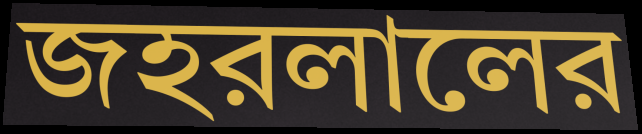
জহরলালের